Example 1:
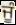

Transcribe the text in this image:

ਜੂੰ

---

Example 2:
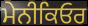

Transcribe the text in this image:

ਮੇਨੀਕਿਓਰ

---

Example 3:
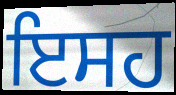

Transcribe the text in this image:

ਇਸਹ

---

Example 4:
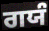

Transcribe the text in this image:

ਗਯੰ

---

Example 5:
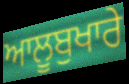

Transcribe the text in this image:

ਆਲੂਬੁਖਾਰੇ